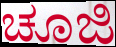
ಚೂಜಿ